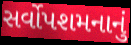
સર્વોપશમનાનું